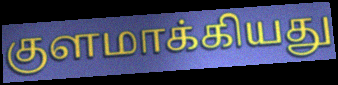
குளமாக்கியது